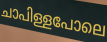
ചാപിള്ളപോലെ